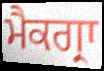
ਮੈਕਗ੍ਰਾ